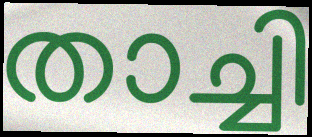
താച്ചി